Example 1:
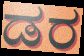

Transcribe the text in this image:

ಡರ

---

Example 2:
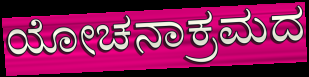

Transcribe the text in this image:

ಯೋಚನಾಕ್ರಮದ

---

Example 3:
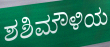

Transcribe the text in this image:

ಶಶಿಮೌಳಿಯ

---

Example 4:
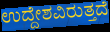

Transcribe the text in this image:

ಉದ್ದೇಶವಿರುತ್ತದೆ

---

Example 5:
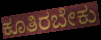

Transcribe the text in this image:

ಕೂತಿರಬೇಕು